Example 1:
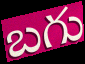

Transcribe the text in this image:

బగు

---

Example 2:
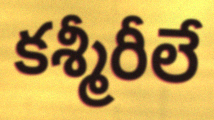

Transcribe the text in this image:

కశ్మీరీలే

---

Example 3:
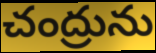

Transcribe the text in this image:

చంద్రును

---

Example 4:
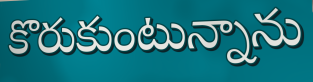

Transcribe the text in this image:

కొరుకుంటున్నాను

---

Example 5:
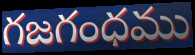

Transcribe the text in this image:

గజగంధము